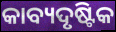
କାବ୍ୟଦୃଷ୍ଟିକ